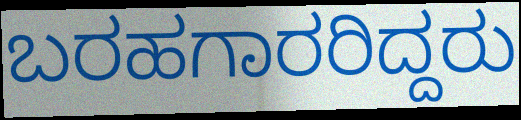
ಬರಹಗಾರರಿದ್ದರು